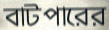
বাটপারের